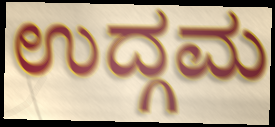
ಉದ್ಗಮ